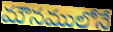
మౌనములోనే